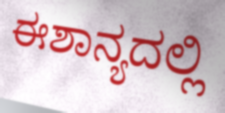
ಈಶಾನ್ಯದಲ್ಲಿ